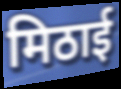
मिठाई